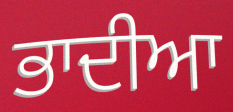
ਭਾਦੀਆ